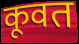
कूवत